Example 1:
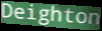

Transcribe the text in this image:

Deighton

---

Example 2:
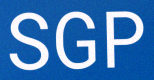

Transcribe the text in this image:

SGP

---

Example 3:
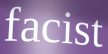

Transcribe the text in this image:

facist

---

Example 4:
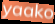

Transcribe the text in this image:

yaako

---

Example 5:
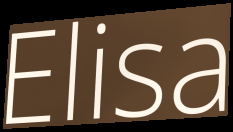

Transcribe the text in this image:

Elisa